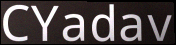
CYadav